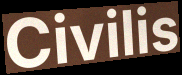
Civilis